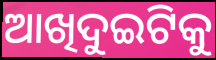
ଆଖିଦୁଇଟିକୁ